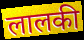
लालकी